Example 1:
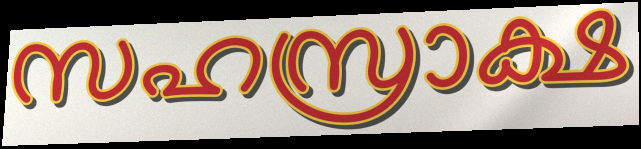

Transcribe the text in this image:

സഹസ്രാക്ഷ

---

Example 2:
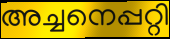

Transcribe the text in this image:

അച്ചനെപ്പറ്റി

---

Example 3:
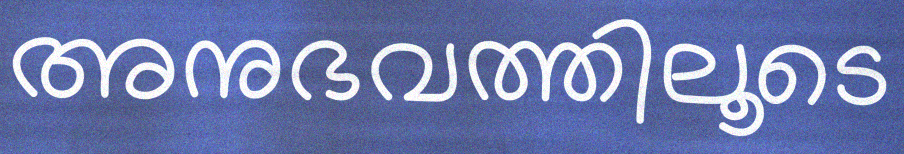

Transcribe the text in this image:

അനുഭവത്തിലൂടെ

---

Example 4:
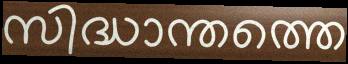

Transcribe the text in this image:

സിദ്ധാന്തത്തെ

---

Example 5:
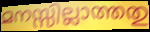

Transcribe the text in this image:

മനസ്സില്ലാത്തതു